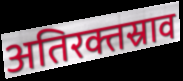
अतिरक्तस्राव